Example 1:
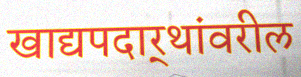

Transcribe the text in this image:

खाद्यपदार्थांवरील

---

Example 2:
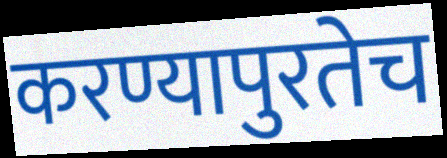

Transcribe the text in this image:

करण्यापुरतेच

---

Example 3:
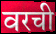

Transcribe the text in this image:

वरची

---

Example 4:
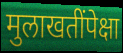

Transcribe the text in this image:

मुलाखतींपेक्षा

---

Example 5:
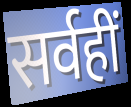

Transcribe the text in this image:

सर्वहीं